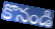
కొనండి